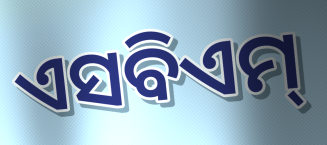
ଏସବିଏମ୍